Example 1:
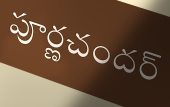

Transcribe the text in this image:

పూర్ణచందర్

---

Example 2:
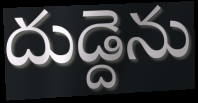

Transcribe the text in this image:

దుడ్దెను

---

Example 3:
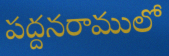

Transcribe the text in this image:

పద్దనరాములో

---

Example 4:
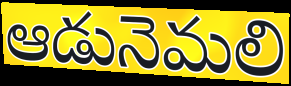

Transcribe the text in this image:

ఆడునెమలి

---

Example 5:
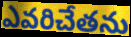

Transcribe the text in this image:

ఎవరిచేతను